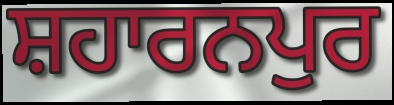
ਸ਼ਹਾਰਨਪੁਰ